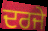
ਦਰਜੇ